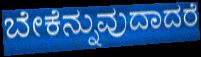
ಬೇಕೆನ್ನುವುದಾದರೆ